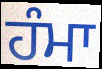
ਹੰਮਾ